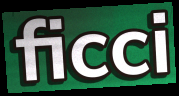
ficci